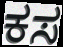
ಕಸ